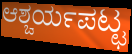
ಆಶ್ಚರ್ಯಪಟ್ಟ